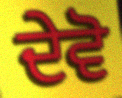
ਦੇਵੋ